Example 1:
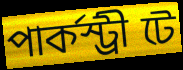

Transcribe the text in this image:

পার্কস্ট্রীটে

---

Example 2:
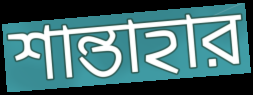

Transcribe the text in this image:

শান্তাহার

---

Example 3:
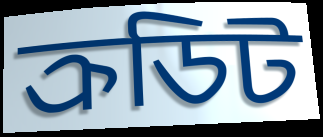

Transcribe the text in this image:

ক্রডিট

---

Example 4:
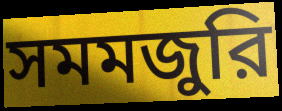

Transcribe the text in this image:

সমমজুরি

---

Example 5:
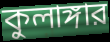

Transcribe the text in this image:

কুলাঙ্গার